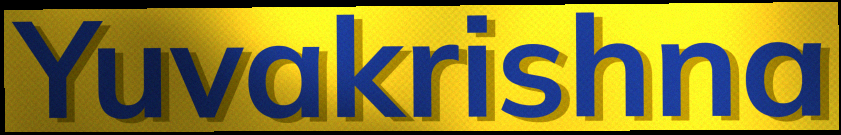
Yuvakrishna